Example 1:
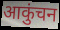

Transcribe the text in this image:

आकुंचन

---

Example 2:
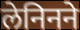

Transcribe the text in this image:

लेनिनने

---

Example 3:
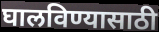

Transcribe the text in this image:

घालविण्यासाठी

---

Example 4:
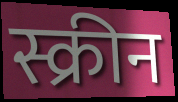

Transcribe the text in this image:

स्क्रीन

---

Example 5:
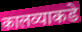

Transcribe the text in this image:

कालव्याकडे